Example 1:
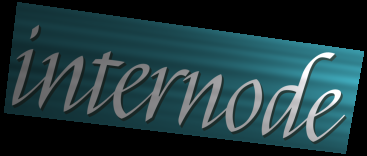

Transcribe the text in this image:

internode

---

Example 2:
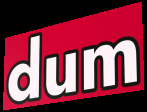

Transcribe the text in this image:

dum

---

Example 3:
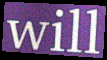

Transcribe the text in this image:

will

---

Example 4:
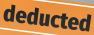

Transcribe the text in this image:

deducted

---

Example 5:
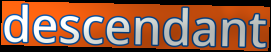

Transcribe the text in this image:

descendant